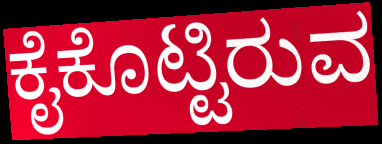
ಕೈಕೊಟ್ಟಿರುವ